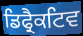
ਡਿਫ੍ਰੈਕਟਿਵ